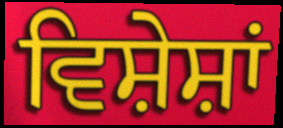
ਵਿਸ਼ੇਸ਼ਾਂ